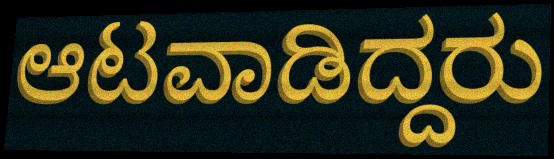
ಆಟವಾಡಿದ್ದರು